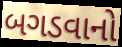
બગડવાનો